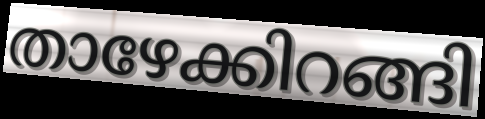
താഴേക്കിറങ്ങി